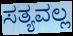
ಸತ್ಯವಲ್ಲ